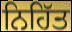
ਨਿਹਿੱਤ